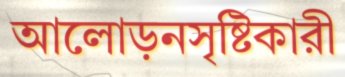
আলোড়নসৃষ্টিকারী